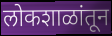
लोकशाळांतून